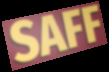
SAFF